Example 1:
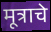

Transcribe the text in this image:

मूत्राचे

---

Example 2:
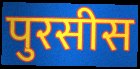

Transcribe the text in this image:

पुरसीस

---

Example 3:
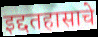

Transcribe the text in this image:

इद्दतहासाचे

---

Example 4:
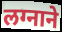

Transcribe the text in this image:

लग्नाने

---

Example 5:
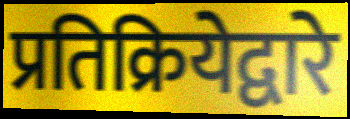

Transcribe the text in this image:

प्रतिक्रियेद्वारे